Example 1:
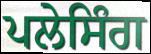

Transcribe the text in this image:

ਪਲੇਸਿੰਗ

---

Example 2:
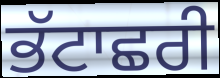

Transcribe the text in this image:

ਭੱਟਾਛਰੀ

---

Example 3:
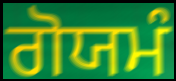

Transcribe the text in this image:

ਗੋਯਮੰ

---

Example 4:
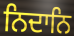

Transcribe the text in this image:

ਨਿਦਾਨਿ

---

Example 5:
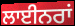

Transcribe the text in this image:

ਲਾਈਨਰਾਂ